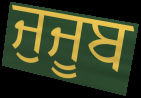
ਜੁਜੂਬ